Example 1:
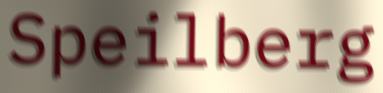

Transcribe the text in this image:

Speilberg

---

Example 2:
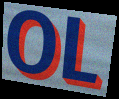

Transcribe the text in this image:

OL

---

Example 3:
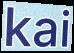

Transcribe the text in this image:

kai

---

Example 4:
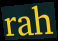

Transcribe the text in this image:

rah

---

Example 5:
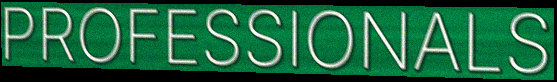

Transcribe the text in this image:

PROFESSIONALS